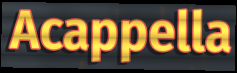
Acappella